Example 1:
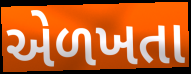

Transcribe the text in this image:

એળખતા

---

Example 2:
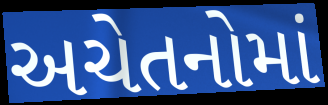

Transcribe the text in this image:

અચેતનોમાં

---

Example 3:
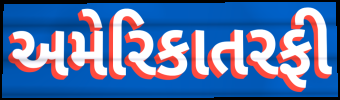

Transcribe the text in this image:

અમેરિકાતરફી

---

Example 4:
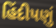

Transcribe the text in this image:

હિંદીપણું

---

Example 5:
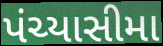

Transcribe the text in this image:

પંચ્યાસીમા